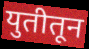
युतीतून